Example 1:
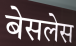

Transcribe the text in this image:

बेसलेस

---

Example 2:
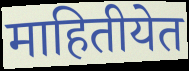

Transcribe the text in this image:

माहितीयेत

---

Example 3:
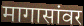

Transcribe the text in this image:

मागासांवर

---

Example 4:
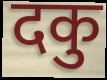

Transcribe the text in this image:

दकु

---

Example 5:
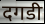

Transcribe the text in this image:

दगडी